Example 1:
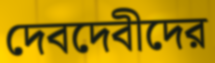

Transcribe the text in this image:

দেবদেবীদের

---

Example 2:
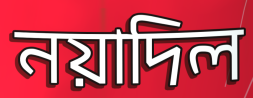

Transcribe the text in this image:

নয়াদিল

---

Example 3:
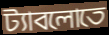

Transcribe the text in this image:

ট্যাবলোতে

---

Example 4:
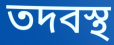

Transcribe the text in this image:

তদবস্থ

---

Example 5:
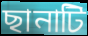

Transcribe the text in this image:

ছানাটি